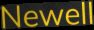
Newell